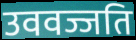
उववज्जति